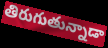
తిరుగుతున్నాడా